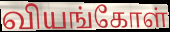
வியங்கோள்